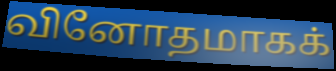
வினோதமாகக்